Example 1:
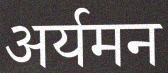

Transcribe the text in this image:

अर्यमन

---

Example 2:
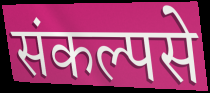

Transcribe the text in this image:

संकल्पसे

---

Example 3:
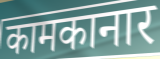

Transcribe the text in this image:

कामकानार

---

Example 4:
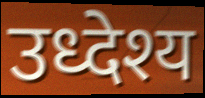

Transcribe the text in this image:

उध्देश्य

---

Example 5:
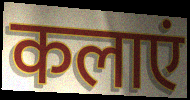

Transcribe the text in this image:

कलाएं